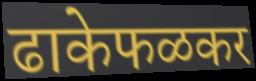
ढाकेफळकर